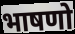
भाषणो